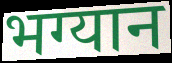
भग्यान